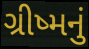
ગ્રીષ્મનું